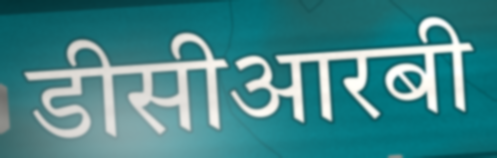
डीसीआरबी